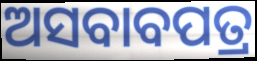
ଅସବାବପତ୍ର